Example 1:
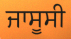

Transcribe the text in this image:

ਜਾਸੂਸੀ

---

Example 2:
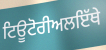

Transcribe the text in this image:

ਟਿਊਟੋਰੀਅਲਇੱਥੇ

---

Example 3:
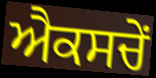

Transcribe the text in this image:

ਐਕਸਚੇਂ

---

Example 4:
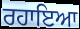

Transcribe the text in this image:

ਰਹਾਇਆ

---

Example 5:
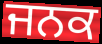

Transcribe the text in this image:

ਜਨਕ